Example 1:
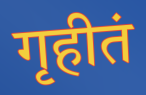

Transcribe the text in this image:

गृहीतं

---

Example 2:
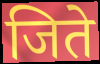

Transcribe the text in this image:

जिते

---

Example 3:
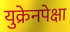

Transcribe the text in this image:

युक्रेनपेक्षा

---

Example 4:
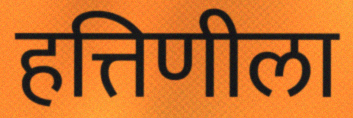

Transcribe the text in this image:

हत्तिणीला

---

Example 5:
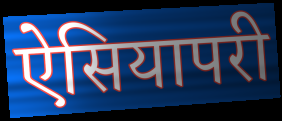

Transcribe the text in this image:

ऐसियापरी